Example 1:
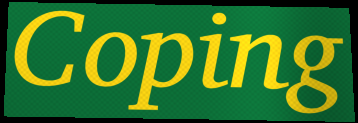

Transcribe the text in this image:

Coping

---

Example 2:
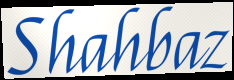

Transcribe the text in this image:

Shahbaz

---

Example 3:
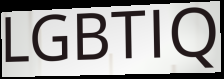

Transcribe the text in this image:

LGBTIQ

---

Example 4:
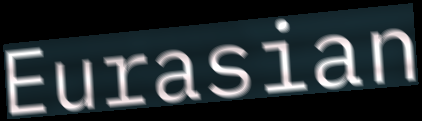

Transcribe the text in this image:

Eurasian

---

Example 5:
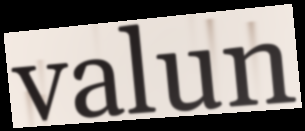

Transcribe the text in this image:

valun